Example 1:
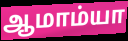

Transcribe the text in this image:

ஆமாம்யா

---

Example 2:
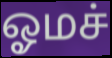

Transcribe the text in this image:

ஓமச்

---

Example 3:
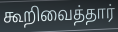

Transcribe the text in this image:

கூறிவைத்தார்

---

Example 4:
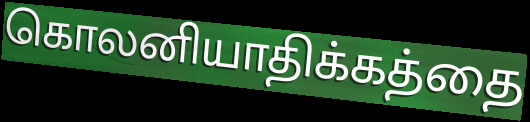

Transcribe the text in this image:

கொலனியாதிக்கத்தை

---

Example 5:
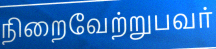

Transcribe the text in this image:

நிறைவேற்றுபவர்